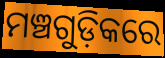
ମଞ୍ଚଗୁଡ଼ିକରେ